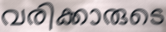
വരിക്കാരുടെ